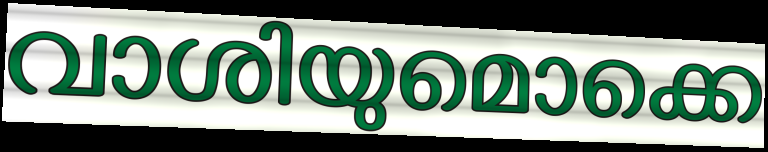
വാശിയുമൊക്കെ